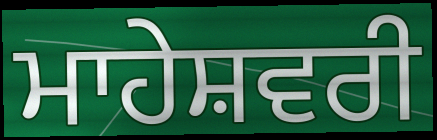
ਮਾਹੇਸ਼ਵਰੀ